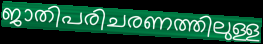
ജാതിപരിചരണത്തിലുള്ള